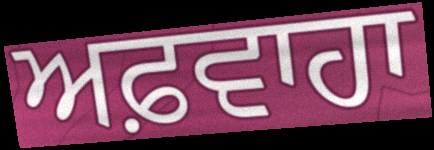
ਅਫ਼ਵਾਹਾ